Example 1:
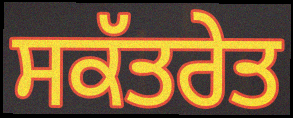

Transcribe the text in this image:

ਸਕੱਤਰੇਤ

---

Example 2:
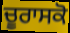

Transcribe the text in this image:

ਚੂਰਾਸਕੋ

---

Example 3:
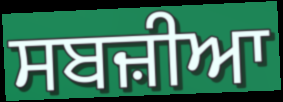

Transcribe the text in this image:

ਸਬਜ਼ੀਆ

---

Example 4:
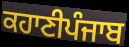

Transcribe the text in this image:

ਕਹਾਣੀਪੰਜਾਬ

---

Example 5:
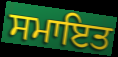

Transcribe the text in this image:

ਸਮਾਇਤ